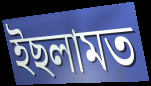
ইছলামত